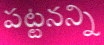
పట్టనన్ని